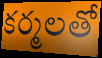
కర్మలతో